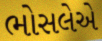
ભોસલેએ